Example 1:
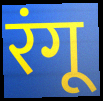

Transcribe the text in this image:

रंगू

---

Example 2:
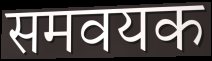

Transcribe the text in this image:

समवयक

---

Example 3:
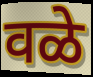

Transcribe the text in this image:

वळे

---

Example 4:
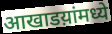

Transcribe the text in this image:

आखाडय़ांमध्ये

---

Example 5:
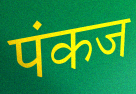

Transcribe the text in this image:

पंकज